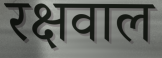
रक्षवाल